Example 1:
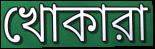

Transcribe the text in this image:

খোকারা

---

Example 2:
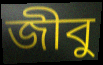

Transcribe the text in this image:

জীবু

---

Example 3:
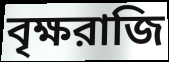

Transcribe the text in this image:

বৃক্ষরাজি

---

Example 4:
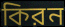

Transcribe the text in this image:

কিরন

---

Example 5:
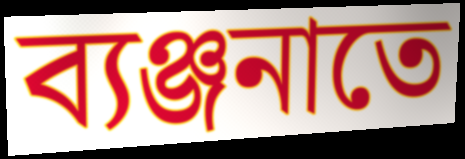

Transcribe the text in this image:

ব্যঞ্জনাতে